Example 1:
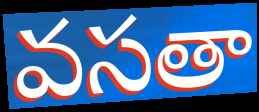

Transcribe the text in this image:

వసతా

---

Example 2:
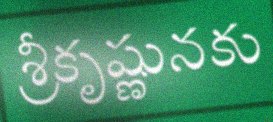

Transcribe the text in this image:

శ్రీకృష్ణునకు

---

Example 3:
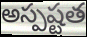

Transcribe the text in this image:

అస్పష్టత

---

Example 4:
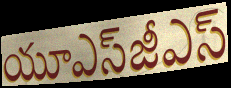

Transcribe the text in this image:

యూఎస్‌జీఎస్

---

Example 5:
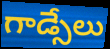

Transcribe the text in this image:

గాడ్సేలు